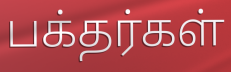
பக்தர்கள்